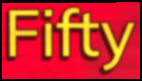
Fifty